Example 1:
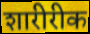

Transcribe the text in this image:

शारीरीक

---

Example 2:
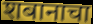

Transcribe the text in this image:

शबानाचा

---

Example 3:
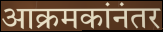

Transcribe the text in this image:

आक्रमकांनंतर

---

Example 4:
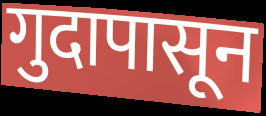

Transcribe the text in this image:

गुदापासून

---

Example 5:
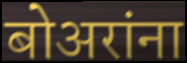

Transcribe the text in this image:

बोअरांना